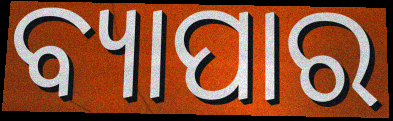
ବ୍ୟାପାର